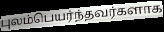
புலம்பெயர்ந்தவர்களாக